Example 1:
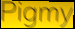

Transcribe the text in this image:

Pigmy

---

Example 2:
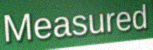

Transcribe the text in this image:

Measured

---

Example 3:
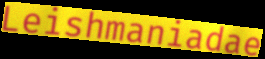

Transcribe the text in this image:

Leishmaniadae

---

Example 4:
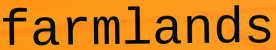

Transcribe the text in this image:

farmlands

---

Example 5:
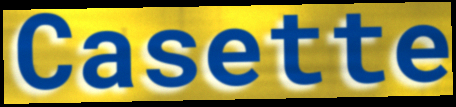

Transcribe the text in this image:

Casette